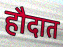
हौदात